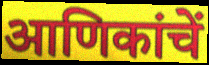
आणिकांचें